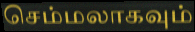
செம்மலாகவும்